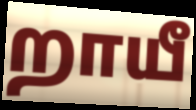
றாயீ